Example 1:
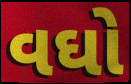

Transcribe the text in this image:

વઘો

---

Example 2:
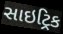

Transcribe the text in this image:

સાઇટ્રિક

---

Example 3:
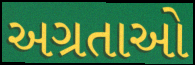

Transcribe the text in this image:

અગ્રતાઓ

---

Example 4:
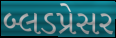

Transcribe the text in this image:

બ્લડપ્રેસર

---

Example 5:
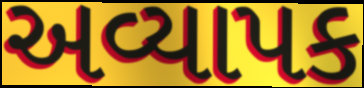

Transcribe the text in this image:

અવ્યાપક